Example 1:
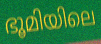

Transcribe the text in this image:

ഭൂമിയിലെ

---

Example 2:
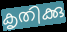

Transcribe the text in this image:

കൃതിക്കു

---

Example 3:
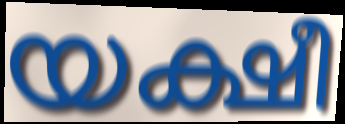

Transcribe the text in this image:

യക്ഷീ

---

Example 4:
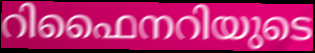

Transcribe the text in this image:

റിഫൈനറിയുടെ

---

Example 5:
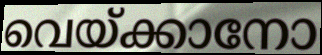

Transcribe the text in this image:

വെയ്ക്കാനോ